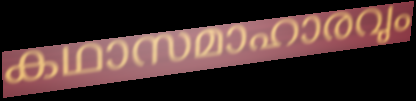
കഥാസമാഹാരവും